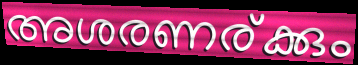
അശരണര്ക്കും